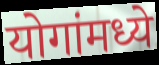
योगांमध्ये